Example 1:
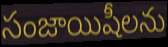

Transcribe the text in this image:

సంజాయిషీలను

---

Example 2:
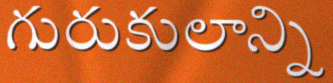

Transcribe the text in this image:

గురుకులాన్ని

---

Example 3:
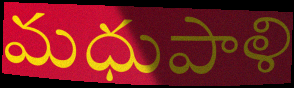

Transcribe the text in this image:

మధుపాళి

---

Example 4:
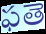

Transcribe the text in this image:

ఫతె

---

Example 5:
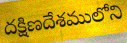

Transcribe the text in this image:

దక్షిణదేశములోని